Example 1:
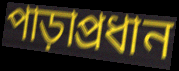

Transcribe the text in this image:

পাড়াপ্রধান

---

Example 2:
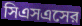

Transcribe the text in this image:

সিএসএসের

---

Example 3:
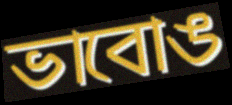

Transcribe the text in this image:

ভাবোঙ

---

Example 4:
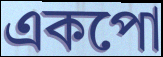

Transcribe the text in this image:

একপো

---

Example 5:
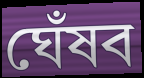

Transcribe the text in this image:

ঘেঁষব